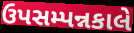
ઉપસમ્પન્નકાલે